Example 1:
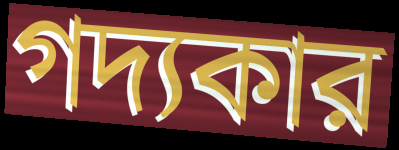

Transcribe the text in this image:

গদ্যকার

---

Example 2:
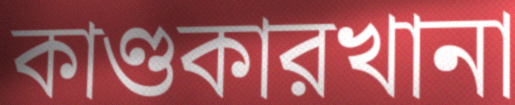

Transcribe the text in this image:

কাণ্ডকারখানা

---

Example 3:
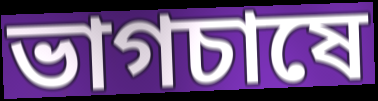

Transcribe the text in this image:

ভাগচাষে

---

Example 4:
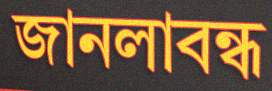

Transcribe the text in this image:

জানলাবন্ধ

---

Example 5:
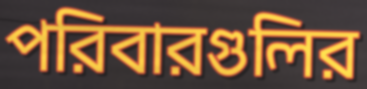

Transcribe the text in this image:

পরিবারগুলির